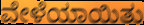
ವೇಳೆಯಾಯಿತು